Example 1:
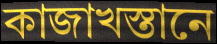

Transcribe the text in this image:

কাজাখস্তানে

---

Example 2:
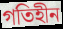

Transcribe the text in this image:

গতিহীন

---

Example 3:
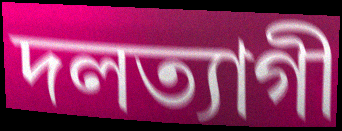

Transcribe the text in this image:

দলত্যাগী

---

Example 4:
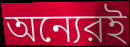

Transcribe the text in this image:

অন্যেরই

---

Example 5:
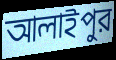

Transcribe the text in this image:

আলাইপুর